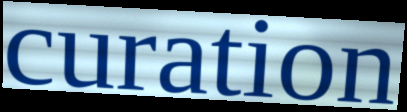
curation